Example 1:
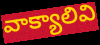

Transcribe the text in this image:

వాక్యాలివి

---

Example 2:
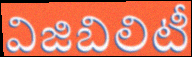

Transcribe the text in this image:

విజిబిలిటీ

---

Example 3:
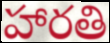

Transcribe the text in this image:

హారతి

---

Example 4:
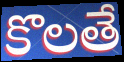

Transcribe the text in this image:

కొలతే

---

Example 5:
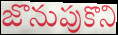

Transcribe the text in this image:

జొనుపుకొని